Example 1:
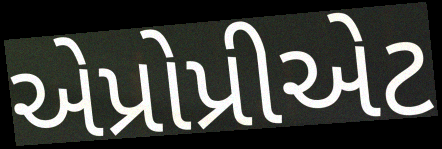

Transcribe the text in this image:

એપ્રોપ્રીએટ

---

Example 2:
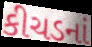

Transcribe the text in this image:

કીચડનાં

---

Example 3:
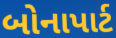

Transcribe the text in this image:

બોનાપાર્ટ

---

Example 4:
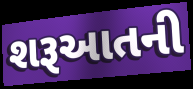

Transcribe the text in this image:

શરૂઆતની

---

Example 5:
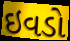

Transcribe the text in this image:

ઇવડો